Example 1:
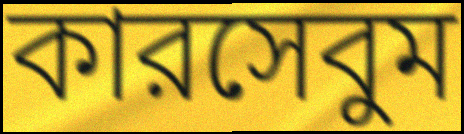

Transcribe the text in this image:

কারসেবুম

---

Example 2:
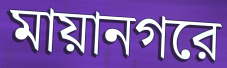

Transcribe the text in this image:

মায়ানগরে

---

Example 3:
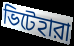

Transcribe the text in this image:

ভিটেহারা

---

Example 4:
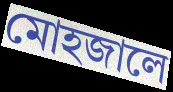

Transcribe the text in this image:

মোহজালে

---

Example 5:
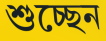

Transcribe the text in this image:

শুচ্ছেন